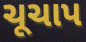
ચૂચાપ